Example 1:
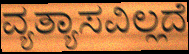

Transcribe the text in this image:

ವ್ಯತ್ಯಾಸವಿಲ್ಲದೆ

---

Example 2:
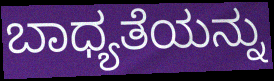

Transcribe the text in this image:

ಬಾಧ್ಯತೆಯನ್ನು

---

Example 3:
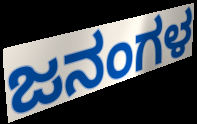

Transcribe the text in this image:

ಜನಂಗಳ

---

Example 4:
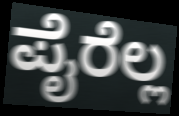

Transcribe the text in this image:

ಪೈರೆಲ್ಲ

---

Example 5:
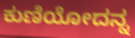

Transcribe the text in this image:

ಕುಣಿಯೋದನ್ನ